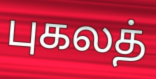
புகலத்